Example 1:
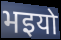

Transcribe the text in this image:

भइयो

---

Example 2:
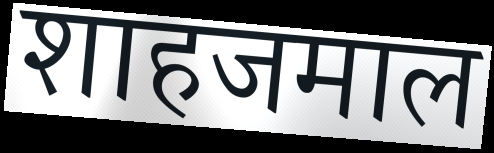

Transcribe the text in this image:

शाहजमाल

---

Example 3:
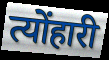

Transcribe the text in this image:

त्योंहारी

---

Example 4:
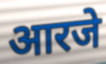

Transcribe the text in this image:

आरजे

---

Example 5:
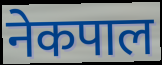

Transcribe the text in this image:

नेकपाल